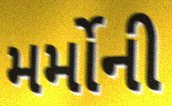
મર્મોની